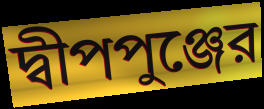
দ্বীপপুঞ্জের